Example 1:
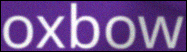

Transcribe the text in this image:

oxbow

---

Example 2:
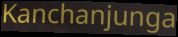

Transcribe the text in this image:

Kanchanjunga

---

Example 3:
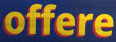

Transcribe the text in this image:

offere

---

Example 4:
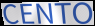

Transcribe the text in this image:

CENTO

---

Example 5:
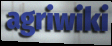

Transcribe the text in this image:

agriwiki